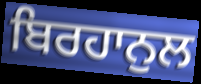
ਬਿਰਹਾਨੁਲ